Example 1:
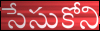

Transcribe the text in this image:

సేసుకోని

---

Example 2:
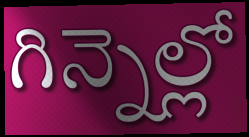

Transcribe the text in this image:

గిన్నెల్లో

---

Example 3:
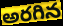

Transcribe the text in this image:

అరగిన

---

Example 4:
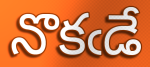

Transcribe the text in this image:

నొకఁడే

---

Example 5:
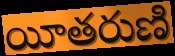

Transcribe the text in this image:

యీతరుణి